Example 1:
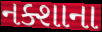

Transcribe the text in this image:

નક્શાના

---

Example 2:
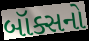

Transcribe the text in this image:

બૉક્સનો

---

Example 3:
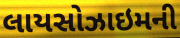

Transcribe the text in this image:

લાયસોઝાઇમની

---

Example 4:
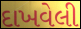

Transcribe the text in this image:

દાખવેલી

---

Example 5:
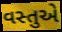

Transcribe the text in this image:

વસ્તુએ